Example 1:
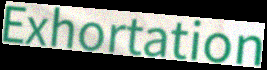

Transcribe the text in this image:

Exhortation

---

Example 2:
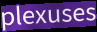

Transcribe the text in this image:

plexuses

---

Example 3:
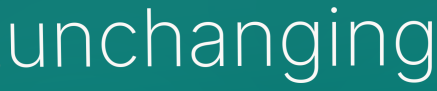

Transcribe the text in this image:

unchanging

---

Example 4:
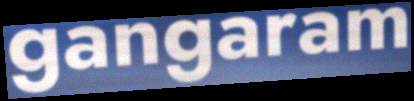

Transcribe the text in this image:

gangaram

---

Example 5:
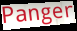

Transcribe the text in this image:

Panger